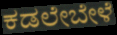
ಕಡಲೇಬೇಳೆ